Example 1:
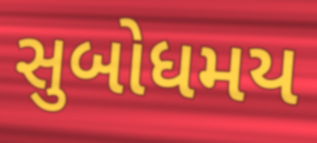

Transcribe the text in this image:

સુબોધમય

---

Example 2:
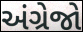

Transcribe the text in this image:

અંગ્રેજો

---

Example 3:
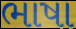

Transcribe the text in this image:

ભાષા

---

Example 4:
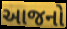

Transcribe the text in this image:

આજનો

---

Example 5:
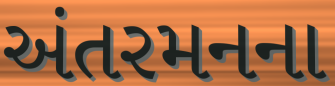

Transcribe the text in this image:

અંતરમનના